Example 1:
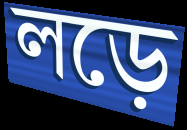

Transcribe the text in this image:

লড়ে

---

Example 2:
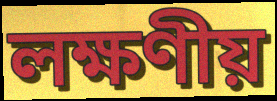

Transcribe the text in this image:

লক্ষণীয়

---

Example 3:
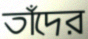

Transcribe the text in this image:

তাঁদের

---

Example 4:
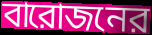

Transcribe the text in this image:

বারোজনের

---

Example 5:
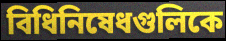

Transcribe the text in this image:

বিধিনিষেধগুলিকে